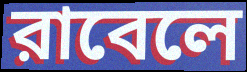
রাবেলে